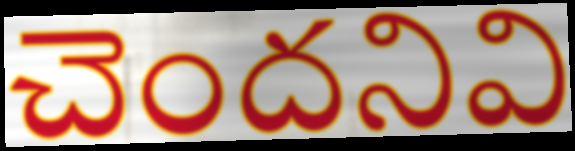
చెందనివి